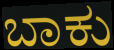
ಬಾಕು